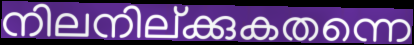
നിലനില്ക്കുകതന്നെ